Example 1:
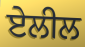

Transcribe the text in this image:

ਏਲੀਲ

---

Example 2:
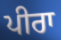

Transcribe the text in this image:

ਪੀਰਾ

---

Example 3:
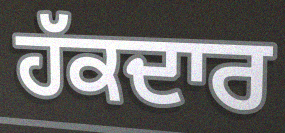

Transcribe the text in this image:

ਹੱਕਦਾਰ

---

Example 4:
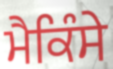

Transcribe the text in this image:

ਮੈਕਿੰਸੇ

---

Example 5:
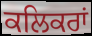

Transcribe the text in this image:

ਕਲਿਕਰਾਂ